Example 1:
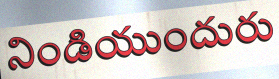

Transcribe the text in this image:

నిండియుందురు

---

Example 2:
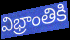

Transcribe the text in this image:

విభ్రాంతికి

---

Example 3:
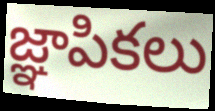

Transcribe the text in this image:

జ్ఞాపికలు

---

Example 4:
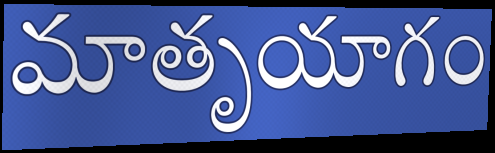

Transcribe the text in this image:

మాతృయాగం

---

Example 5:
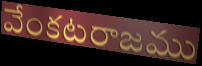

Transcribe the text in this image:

వేంకటరాజము